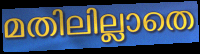
മതിലില്ലാതെ